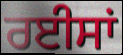
ਰਈਸਾਂ